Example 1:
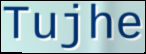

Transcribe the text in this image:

Tujhe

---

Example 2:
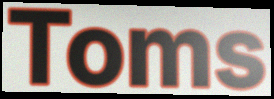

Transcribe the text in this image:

Toms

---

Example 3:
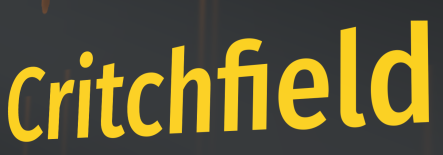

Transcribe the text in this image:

Critchfield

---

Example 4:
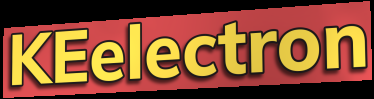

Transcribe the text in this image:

KEelectron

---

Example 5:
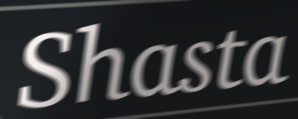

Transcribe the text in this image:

Shasta